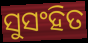
ସୁସଂହିତ